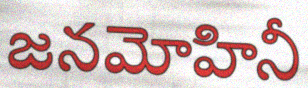
జనమోహినీ